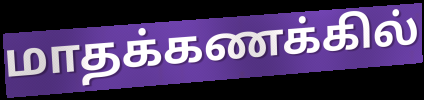
மாதக்கணக்கில்